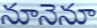
నూనెనూ